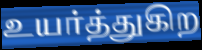
உயர்த்துகிற